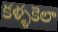
కళ్ళకెలా